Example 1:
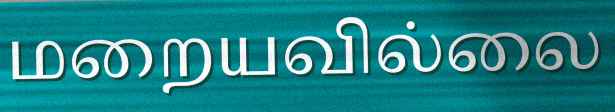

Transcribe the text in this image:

மறையவில்லை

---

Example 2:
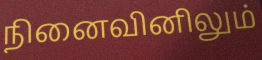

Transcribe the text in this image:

நினைவினிலும்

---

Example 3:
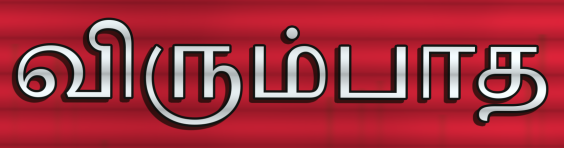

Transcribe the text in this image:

விரும்பாத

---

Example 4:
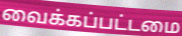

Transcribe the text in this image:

வைக்கப்பட்டமை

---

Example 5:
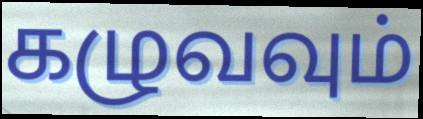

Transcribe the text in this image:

கழுவவும்